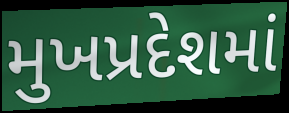
મુખપ્રદેશમાં